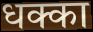
धक्का